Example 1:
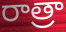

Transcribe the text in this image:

రాత్రా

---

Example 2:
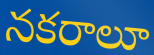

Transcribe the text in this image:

నకరాలూ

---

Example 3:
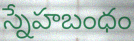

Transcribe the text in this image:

స్నేహబంధం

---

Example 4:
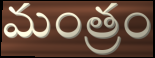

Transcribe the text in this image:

మంత్రం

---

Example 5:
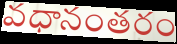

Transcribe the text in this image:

వధానంతరం